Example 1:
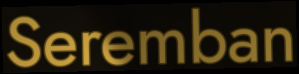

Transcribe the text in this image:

Seremban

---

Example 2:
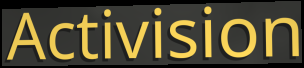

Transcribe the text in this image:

Activision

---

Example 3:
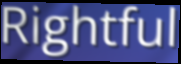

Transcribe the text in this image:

Rightful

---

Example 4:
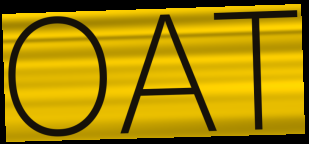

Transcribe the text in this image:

OAT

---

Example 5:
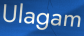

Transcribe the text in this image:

Ulagam